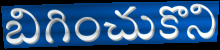
బిగించుకొని